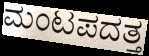
ಮಂಟಪದತ್ತ